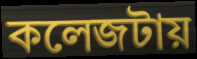
কলেজটায়